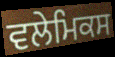
ਵਲੇਮਿਕਸ